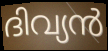
ദിവ്യൻ